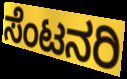
ಸೆಂಟನರಿ